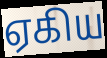
ஏகிய